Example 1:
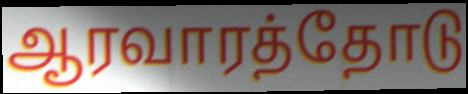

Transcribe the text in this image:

ஆரவாரத்தோடு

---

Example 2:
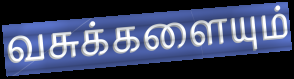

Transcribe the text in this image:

வசுக்களையும்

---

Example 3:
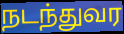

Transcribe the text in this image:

நடந்துவர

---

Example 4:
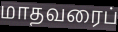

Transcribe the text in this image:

மாதவரைப்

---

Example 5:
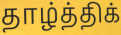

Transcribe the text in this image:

தாழ்த்திக்